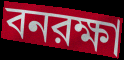
বনরক্ষা